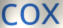
cox